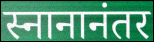
स्नानानंतर